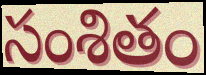
సంశితం